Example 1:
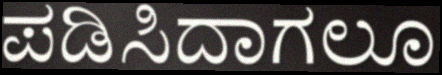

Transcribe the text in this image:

ಪಡಿಸಿದಾಗಲೂ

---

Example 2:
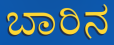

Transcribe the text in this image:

ಬಾರಿನ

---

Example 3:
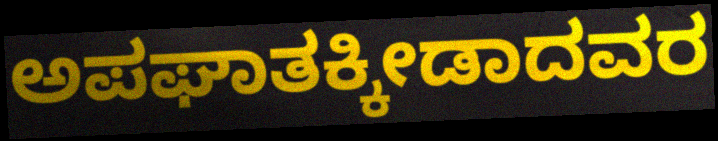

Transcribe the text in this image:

ಅಪಘಾತಕ್ಕೀಡಾದವರ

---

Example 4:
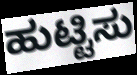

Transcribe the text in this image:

ಹುಟ್ಟಿಸು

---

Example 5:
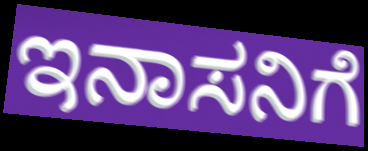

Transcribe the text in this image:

ಇನಾಸನಿಗೆ